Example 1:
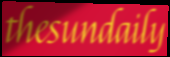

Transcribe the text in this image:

thesundaily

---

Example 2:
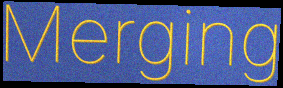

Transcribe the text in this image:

Merging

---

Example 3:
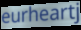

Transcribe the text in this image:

eurheartj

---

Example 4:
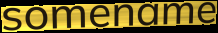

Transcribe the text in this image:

somename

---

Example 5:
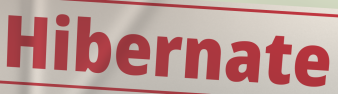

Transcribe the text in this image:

Hibernate